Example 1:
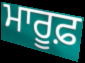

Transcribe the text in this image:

ਮਾਰੂਫ਼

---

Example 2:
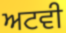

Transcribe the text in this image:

ਅਟਵੀ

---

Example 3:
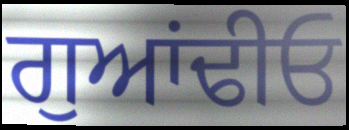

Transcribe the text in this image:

ਗੁਆਂਢੀਓ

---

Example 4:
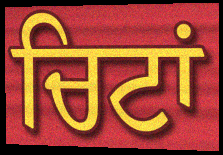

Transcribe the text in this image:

ਚਿਟਾਂ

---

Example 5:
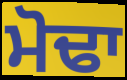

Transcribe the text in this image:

ਮੋਢਾ